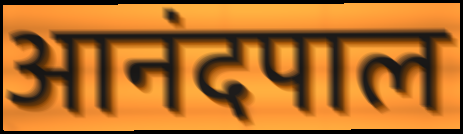
आनंदपाल